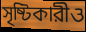
সৃষ্টিকারীও